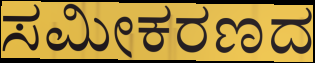
ಸಮೀಕರಣದ